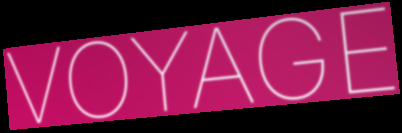
VOYAGE